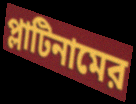
প্লাটিনামের